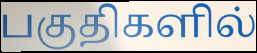
பகுதிகளில்